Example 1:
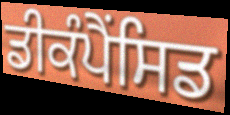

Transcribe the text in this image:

ਡੀਕੰਪੈਂਸਿਡ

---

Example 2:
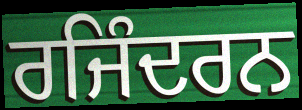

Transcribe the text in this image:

ਰਜਿੰਦਰਨ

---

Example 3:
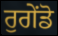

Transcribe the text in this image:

ਰੁਗੇਂਡੋ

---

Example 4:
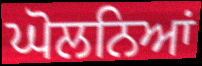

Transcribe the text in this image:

ਘੋਲਨਿਆਂ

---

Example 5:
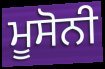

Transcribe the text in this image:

ਮੂਸੋਨੀ